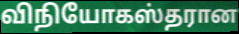
விநியோகஸ்தரான